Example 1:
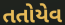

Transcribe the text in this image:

તતોયેવ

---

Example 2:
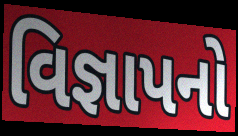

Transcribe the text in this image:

વિજ્ઞાપનો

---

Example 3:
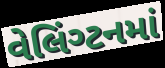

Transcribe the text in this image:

વેલિંગ્ટનમાં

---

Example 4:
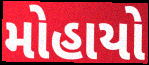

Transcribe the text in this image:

મોહાયો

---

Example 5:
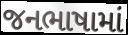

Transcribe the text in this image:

જનભાષામાં